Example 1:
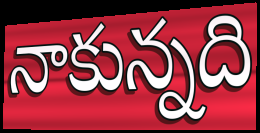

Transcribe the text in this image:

నాకున్నది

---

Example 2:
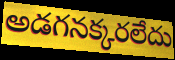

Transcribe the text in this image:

అడగనక్కరలేదు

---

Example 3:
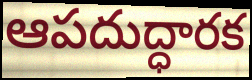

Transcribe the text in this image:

ఆపదుద్ధారక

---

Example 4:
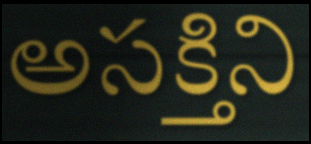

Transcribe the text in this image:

అసక్తిని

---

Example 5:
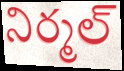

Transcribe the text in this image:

నిర్మల్